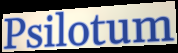
Psilotum